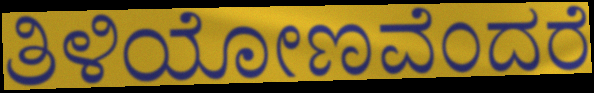
ತಿಳಿಯೋಣವೆಂದರೆ